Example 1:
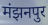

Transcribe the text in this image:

मंझनपुर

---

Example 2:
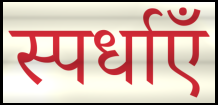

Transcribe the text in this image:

स्पर्धाएँ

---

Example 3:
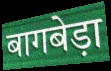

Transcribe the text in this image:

बागबेड़ा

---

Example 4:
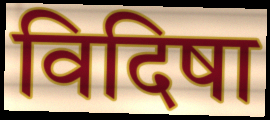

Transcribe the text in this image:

विदिषा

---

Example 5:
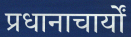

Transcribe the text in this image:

प्रधानाचार्यों